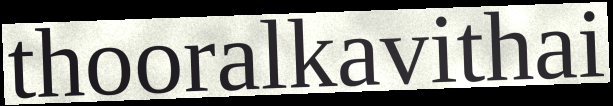
thooralkavithai